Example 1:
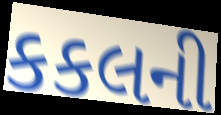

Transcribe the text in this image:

કકલની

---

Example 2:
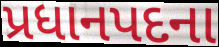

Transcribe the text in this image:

પ્રધાનપદના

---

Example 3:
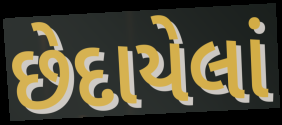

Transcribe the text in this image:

છેદાયેલાં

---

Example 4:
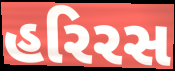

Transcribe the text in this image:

હરિરસ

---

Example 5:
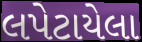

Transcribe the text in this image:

લપેટાયેલા